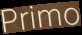
Primo